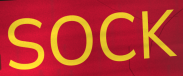
SOCK